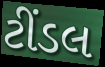
ટીંડલ